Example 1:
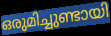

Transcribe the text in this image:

ഒരുമിച്ചുണ്ടായി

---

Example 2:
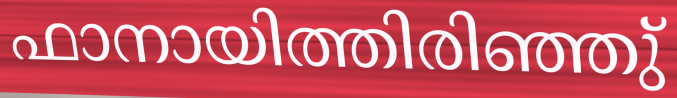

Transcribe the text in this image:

ഫാനായിത്തിരിഞ്ഞു്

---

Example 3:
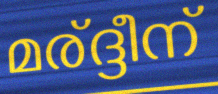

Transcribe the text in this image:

മര്ദ്ദീന്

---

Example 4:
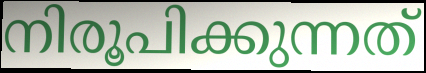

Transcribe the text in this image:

നിരൂപിക്കുന്നത്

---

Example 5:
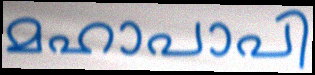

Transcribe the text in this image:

മഹാപാപി